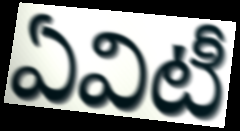
ఏవిటీ